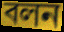
বলন